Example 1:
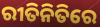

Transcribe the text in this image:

ରୀତିନିତିରେ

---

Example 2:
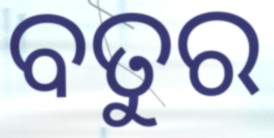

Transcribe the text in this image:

ବତୁର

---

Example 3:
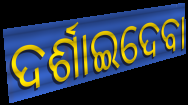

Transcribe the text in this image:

ଦର୍ଶାଇଦେବା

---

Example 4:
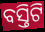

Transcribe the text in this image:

ବସ୍ତିଟି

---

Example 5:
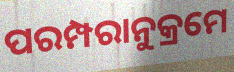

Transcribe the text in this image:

ପରମ୍ପରାନୁକ୍ରମେ